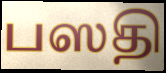
பஸதி